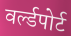
वर्ल्डपोर्ट